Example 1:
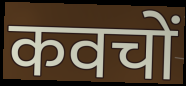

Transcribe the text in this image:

कवचों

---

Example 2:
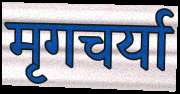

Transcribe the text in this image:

मृगचर्या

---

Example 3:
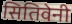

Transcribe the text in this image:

सितिवेनी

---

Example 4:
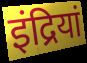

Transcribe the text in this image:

इंद्रियां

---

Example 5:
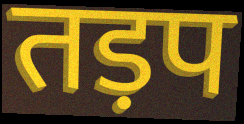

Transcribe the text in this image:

तड़प